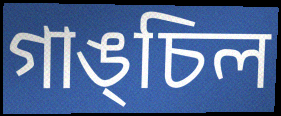
গাঙ্‌চিল